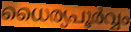
ധൈര്യപൂർവ്വം